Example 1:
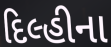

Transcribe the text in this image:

દિલ્હીના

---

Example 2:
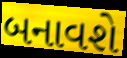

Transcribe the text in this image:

બનાવશે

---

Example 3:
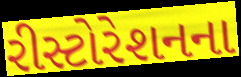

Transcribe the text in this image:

રીસ્ટોરેશનના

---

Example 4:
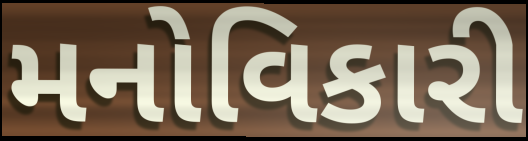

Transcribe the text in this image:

મનોવિકારી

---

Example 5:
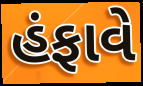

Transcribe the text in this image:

હંફાવે